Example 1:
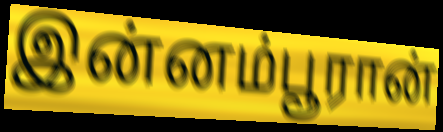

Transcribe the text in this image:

இன்னம்பூரான்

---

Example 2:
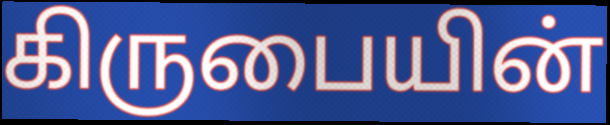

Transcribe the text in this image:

கிருபையின்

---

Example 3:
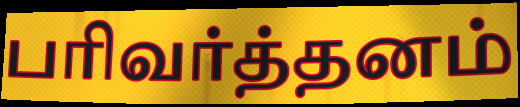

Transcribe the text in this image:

பரிவர்த்தனம்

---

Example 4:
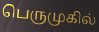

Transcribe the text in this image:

பெருமுகில்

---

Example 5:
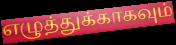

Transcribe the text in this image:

எழுத்துக்காகவும்